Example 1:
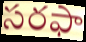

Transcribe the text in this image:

సరఫా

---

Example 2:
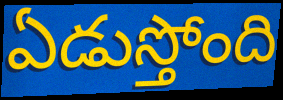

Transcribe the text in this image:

ఏడుస్తోంది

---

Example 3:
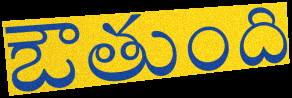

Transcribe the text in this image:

ఔతుంది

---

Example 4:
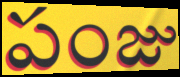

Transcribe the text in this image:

పంజు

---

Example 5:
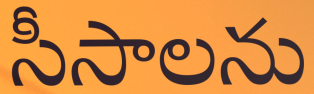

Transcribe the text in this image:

సీసాలను